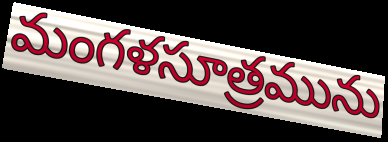
మంగళసూత్రమును